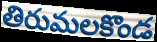
తిరుమలకొండ